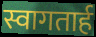
स्वागतार्ह